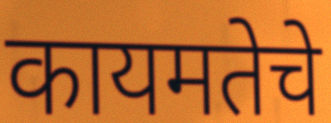
कायमतेचे